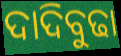
ଦାଦିବୁଢା